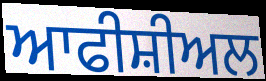
ਆਫੀਸ਼ੀਅਲ